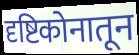
दृष्टिकोनातून